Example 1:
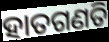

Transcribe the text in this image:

ହାତଗଣତି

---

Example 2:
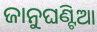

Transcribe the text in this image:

ଜାନୁଘଣ୍ଟିଆ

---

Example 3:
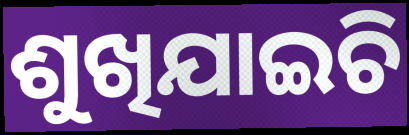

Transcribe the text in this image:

ଶୁଖିଯାଇଚି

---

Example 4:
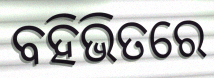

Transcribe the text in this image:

ବହିଭିତରେ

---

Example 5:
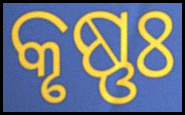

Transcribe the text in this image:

କୃଷ୍ଣଃ